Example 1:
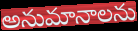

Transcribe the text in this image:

అనుమానాలను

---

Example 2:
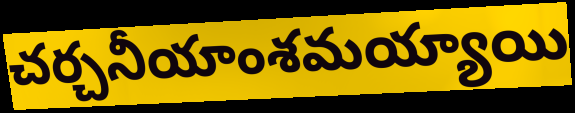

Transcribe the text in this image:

చర్చనీయాంశమయ్యాయి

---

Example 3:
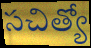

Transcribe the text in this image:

సచిత్యో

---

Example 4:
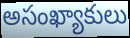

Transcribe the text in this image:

అసంఖ్యాకులు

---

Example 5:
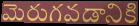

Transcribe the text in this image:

మెరుగవడానికి